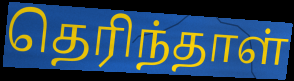
தெரிந்தாள்